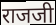
राजजी